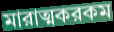
মারাত্মকরকম